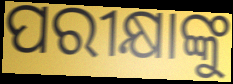
ପରୀକ୍ଷାଙ୍କୁ